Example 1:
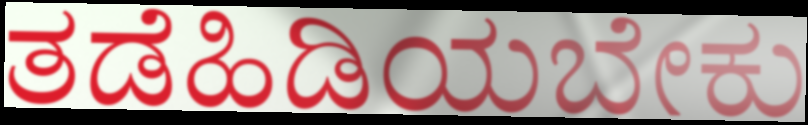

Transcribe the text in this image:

ತಡೆಹಿಡಿಯಬೇಕು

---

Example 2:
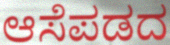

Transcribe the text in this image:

ಆಸೆಪಡದ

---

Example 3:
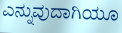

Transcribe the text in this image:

ಎನ್ನುವುದಾಗಿಯೂ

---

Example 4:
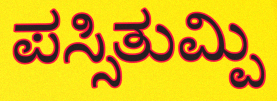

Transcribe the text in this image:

ಪಸ್ಸಿತುಮ್ಪಿ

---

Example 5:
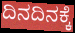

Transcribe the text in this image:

ದಿನದಿನಕ್ಕೆ